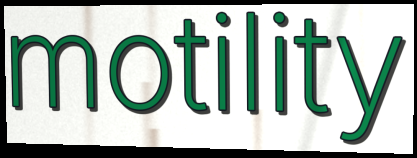
motility